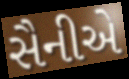
સૈનીએ